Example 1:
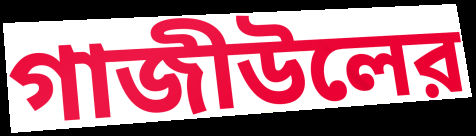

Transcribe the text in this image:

গাজীউলের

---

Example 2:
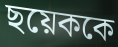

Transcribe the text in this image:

ছয়েককে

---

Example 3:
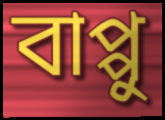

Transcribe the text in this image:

বাপ্পু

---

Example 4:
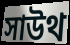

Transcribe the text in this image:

সাউথ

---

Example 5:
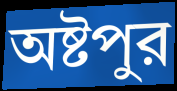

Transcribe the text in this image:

অষ্টপুর